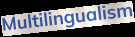
Multilingualism